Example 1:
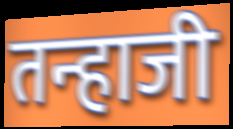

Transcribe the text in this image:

तन्हाजी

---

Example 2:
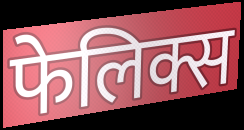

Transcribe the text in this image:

फेलिक्स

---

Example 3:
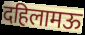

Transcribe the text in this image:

दहिलामऊ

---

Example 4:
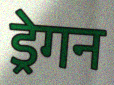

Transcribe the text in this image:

ड्रेगन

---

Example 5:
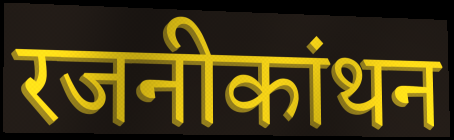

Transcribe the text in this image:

रजनीकांथन